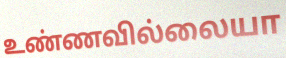
உண்ணவில்லையா